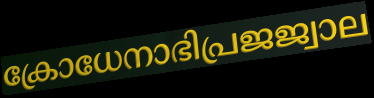
ക്രോധേനാഭിപ്രജജ്വാല